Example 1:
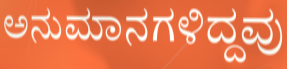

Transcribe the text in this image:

ಅನುಮಾನಗಳಿದ್ದವು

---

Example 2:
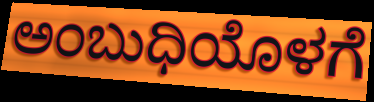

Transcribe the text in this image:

ಅಂಬುಧಿಯೊಳಗೆ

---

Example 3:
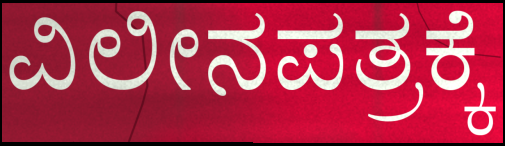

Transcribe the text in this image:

ವಿಲೀನಪತ್ರಕ್ಕೆ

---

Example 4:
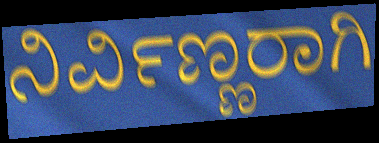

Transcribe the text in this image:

ನಿರ್ವಿಣ್ಣರಾಗಿ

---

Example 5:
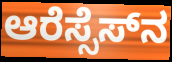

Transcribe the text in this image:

ಆರೆಸ್ಸೆಸ್‌ನ